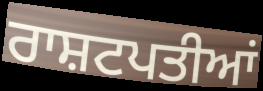
ਰਾਸ਼ਟਪਤੀਆਂ